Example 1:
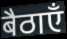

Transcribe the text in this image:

बैठाएँ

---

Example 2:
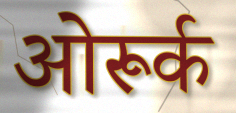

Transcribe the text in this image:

ओरूर्क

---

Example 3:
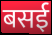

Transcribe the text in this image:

बसई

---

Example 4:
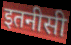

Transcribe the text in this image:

इतनीसी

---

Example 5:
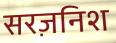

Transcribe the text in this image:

सरज़निश